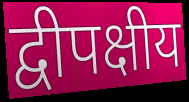
द्वीपक्षीय